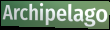
Archipelago